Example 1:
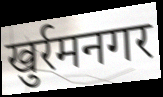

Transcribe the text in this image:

खुर्रमनगर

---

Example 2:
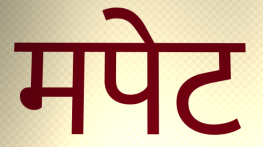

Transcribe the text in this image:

मपेट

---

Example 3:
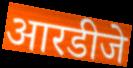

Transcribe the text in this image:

आरडीजे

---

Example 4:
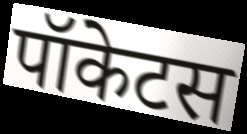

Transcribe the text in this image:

पॉकेटस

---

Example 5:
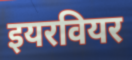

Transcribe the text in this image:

इयरवियर